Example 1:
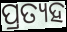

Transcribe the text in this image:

ପ୍ରତ୍ୟହ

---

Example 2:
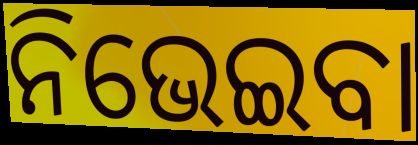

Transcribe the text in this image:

ନିଭେଇବା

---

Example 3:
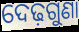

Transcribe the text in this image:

ଦେଢ଼ଗୁଣା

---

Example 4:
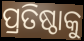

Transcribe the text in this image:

ପ୍ରତିଷ୍ଠାକୁ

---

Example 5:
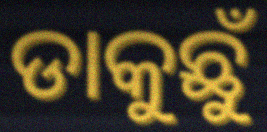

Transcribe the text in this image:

ଡାକୁଛୁଁ